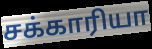
சக்காரியா